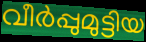
വീർപ്പുമുട്ടിയ